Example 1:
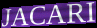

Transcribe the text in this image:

JACARI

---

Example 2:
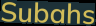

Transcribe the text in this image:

Subahs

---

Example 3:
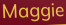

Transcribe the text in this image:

Maggie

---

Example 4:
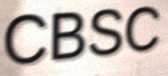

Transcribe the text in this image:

CBSC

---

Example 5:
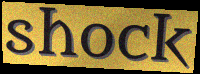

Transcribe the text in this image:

shock